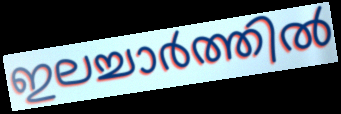
ഇലച്ചാർത്തിൽ